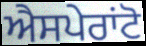
ਐਸਪੇਰਾਂਟੋ